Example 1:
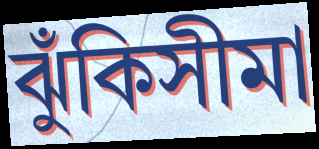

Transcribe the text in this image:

ঝুঁকিসীমা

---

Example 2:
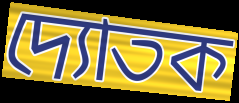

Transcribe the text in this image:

দ্যোতক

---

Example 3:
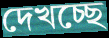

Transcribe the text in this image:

দেখচ্ছে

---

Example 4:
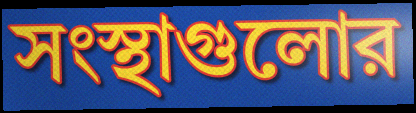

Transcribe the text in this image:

সংস্থাগুলোর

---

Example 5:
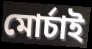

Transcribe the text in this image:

মোর্চাই